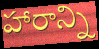
హారాన్ని